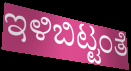
ಇಳಿಬಿಟ್ಟಂತೆ